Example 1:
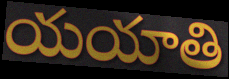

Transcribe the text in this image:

యయాతి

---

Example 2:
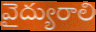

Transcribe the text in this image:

వైద్యురాలి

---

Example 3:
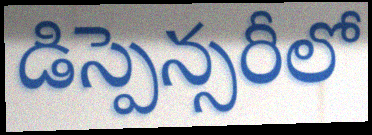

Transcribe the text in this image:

డిస్పెన్సరీలో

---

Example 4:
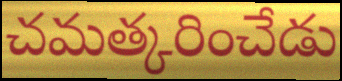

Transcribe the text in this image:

చమత్కరించేడు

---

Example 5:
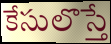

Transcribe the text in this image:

కేసులొస్తే